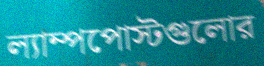
ল্যাম্পপোস্টগুলোর